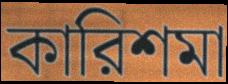
কারিশমা